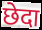
छेदा